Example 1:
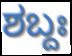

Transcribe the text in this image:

ಶಬ್ದಃ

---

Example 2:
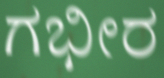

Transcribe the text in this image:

ಗಭೀರ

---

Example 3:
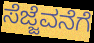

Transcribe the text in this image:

ಸೆಜ್ಜೆವನೆಗೆ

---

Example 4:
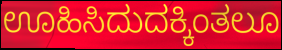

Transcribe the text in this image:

ಊಹಿಸಿದುದಕ್ಕಿಂತಲೂ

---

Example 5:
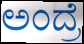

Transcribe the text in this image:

ಅಂದ್ರೆ